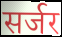
सर्जर